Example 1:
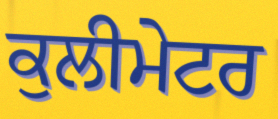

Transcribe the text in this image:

ਕੁਲੀਮੇਟਰ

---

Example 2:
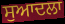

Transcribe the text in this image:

ਸੁਆਦਲਾ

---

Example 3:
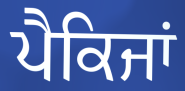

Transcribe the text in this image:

ਪੈਕਿਜਾਂ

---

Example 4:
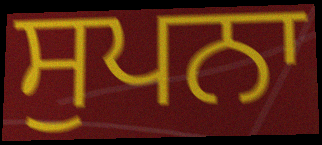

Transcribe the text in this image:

ਸੁਪਨਾ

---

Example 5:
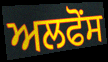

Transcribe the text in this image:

ਅਲਫੋਂਸ